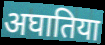
अघातिया